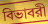
বিভাবরী